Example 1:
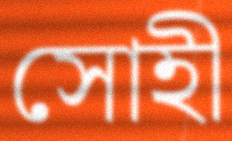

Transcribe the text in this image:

সোহী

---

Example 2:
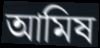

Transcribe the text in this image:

আমিষ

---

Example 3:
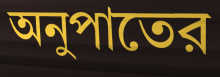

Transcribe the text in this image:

অনুপাতের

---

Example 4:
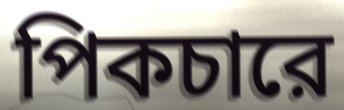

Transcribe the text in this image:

পিকচারে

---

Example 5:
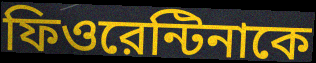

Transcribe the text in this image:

ফিওরেন্টিনাকে